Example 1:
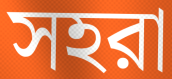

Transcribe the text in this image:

সহরা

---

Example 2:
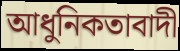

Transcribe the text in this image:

আধুনিকতাবাদী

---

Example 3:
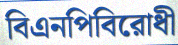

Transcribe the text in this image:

বিএনপিবিরোধী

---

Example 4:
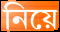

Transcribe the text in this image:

নিয়ে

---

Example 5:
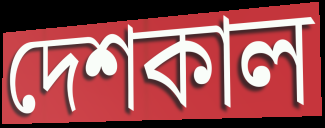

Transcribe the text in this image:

দেশকাল